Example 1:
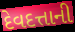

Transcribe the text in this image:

દેવદત્તાની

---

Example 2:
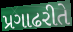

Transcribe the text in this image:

પ્રગાઢરીતે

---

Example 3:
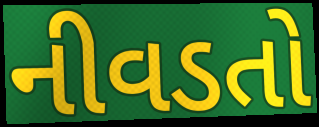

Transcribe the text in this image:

નીવડતો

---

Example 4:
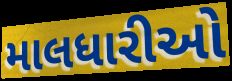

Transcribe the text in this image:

માલધારીઓ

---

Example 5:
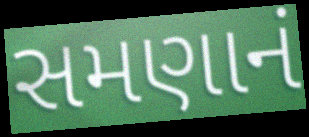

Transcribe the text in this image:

સમણાનં